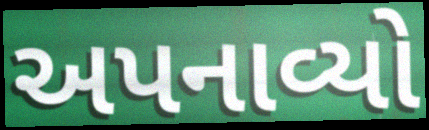
અપનાવ્યો